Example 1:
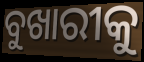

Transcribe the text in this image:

ବୁଖାରୀକୁ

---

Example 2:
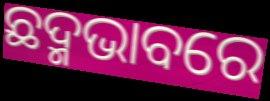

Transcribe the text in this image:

ଛଦ୍ମଭାବରେ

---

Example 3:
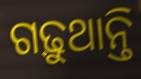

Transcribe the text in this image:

ଗଢ଼ୁଥାନ୍ତି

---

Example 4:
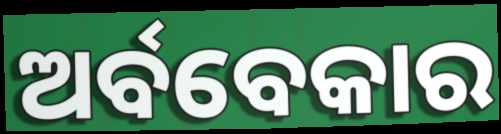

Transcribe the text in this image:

ଅର୍ବବେକାର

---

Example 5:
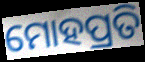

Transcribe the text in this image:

ମୋହପ୍ରତି